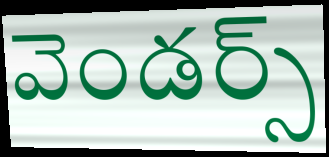
వెండర్స్